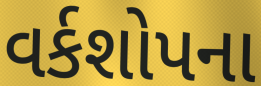
વર્કશોપના